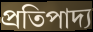
প্রতিপাদ্য